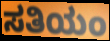
ಸತಿಯಂ